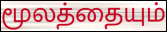
மூலத்தையும்